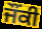
ਜੌਂਕੀ